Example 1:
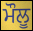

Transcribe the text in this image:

ਮੌਲੂ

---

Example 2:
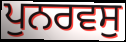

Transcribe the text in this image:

ਪੁਨਰਵਸੁ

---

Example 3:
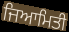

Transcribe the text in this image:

ਜਿਆਮਿਤੀ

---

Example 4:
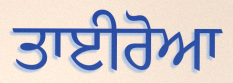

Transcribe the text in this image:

ਤਾਈਰੋਆ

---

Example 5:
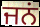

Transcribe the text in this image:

ਜਨਂ